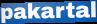
pakartal